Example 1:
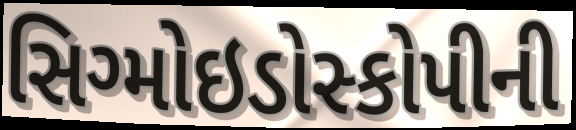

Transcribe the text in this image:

સિગ્મોઇડોસ્કોપીની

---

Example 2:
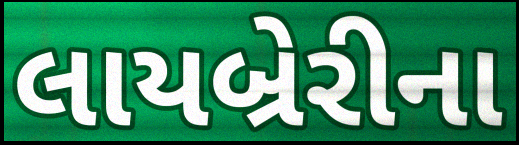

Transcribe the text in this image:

લાયબ્રેરીના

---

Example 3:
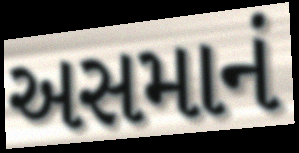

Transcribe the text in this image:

અસમાનં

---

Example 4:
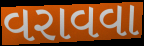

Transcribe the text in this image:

વરાવવા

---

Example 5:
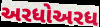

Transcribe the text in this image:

અરધોઅરધ